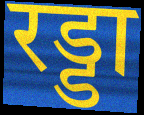
रड्डा